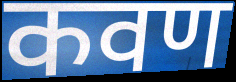
कवण